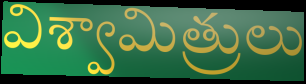
విశ్వామిత్రులు